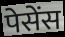
पेसेंस